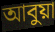
আবুয়া